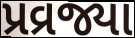
પ્રવ્રજ્યા